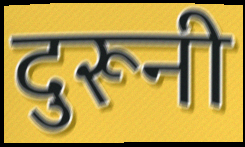
दुरूनी